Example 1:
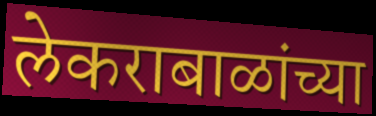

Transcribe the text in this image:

लेकराबाळांच्या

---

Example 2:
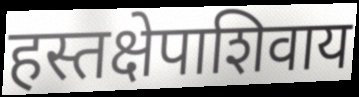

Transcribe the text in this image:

हस्तक्षेपाशिवाय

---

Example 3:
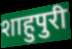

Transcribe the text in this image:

शाहुपुरी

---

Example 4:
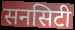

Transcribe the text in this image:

सनसिटी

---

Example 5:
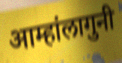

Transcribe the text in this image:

आम्हांलागुनी